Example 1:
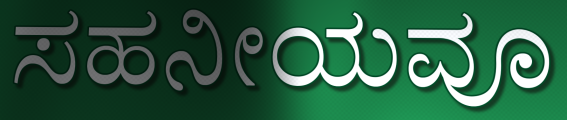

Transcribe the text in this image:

ಸಹನೀಯವೂ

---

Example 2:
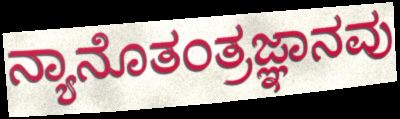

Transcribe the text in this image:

ನ್ಯಾನೊತಂತ್ರಜ್ಞಾನವು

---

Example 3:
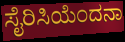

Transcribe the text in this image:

ಸೈರಿಸಿಯೆಂದನಾ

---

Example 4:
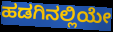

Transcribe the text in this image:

ಹಡಗಿನಲ್ಲಿಯೇ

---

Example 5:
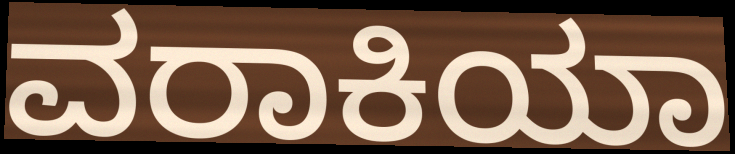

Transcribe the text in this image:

ವರಾಕಿಯಾ